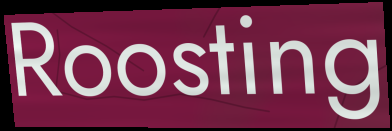
Roosting